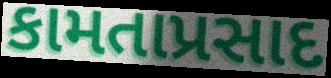
કામતાપ્રસાદ